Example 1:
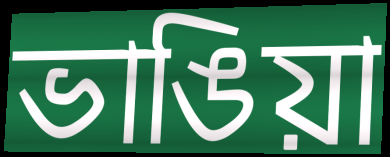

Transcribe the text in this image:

ভাঙিয়া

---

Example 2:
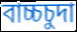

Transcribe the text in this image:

বাচ্চচুদা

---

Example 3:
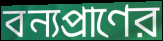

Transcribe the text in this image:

বন্যপ্রাণের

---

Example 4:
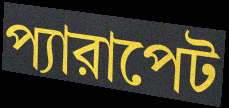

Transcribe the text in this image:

প্যারাপেট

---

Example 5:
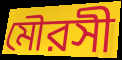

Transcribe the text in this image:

মৌরসী